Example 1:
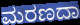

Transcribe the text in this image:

ಮರಣದಾ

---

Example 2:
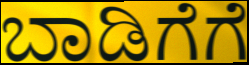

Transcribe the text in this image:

ಬಾಡಿಗೆಗೆ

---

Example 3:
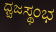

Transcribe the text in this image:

ಧ್ವಜಸ್ಥಂಭ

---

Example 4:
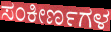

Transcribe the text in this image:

ಸಂಕೀರ್ಣಗಳ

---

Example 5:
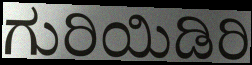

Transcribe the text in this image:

ಗುರಿಯಿಡಿರಿ